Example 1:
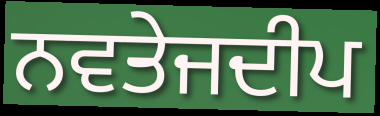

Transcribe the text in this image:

ਨਵਤੇਜਦੀਪ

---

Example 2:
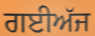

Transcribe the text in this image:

ਗਈਅੱਜ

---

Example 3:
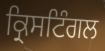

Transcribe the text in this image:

ਕ੍ਰਿਸਟਿੰਗਲ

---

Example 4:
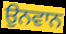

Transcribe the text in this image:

ਉਨਵਾਨ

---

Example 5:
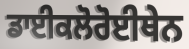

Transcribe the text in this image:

ਡਾਈਕਲੋਰੋਈਥੇਨ